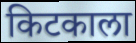
किटकाला